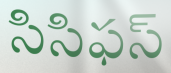
సిసిఫస్